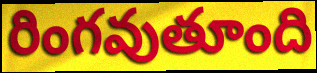
రింగవుతూంది